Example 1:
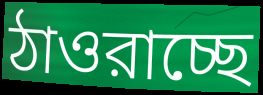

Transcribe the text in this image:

ঠাওরাচ্ছে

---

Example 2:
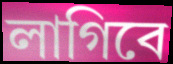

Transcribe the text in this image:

লাগিবে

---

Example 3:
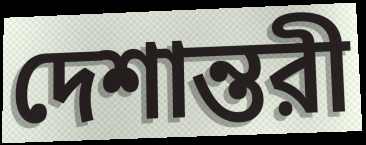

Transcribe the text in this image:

দেশান্তরী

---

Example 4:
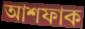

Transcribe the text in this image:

আশফাক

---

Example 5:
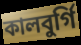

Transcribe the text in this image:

কালবুর্গি